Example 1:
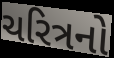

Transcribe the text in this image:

ચરિત્રનો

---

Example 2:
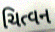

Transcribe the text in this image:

ચિત્વન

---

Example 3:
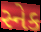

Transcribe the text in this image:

સ્નેક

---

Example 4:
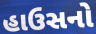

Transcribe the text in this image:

હાઉસનો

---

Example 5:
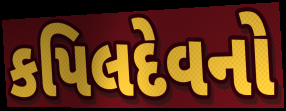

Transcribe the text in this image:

કપિલદેવનો